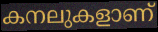
കനലുകളാണ്